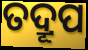
ତଦ୍ରୂପ